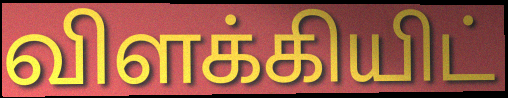
விளக்கியிட்